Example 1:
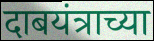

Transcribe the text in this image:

दाबयंत्राच्या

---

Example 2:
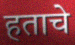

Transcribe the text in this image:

हताचे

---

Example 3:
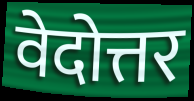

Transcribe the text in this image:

वेदोत्तर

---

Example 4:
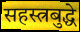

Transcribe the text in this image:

सहस्त्रबुद्धे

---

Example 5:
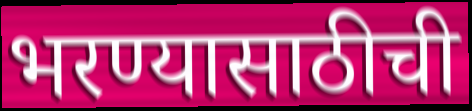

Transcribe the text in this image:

भरण्यासाठीची